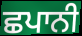
ਛਪਾਨੀ